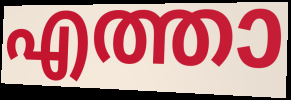
എത്താ